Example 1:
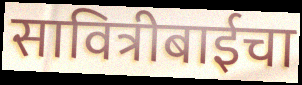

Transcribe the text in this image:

सावित्रीबाईचा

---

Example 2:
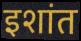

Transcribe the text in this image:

इशांत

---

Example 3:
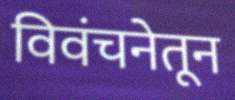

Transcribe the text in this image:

विवंचनेतून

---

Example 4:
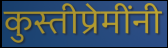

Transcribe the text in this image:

कुस्तीप्रेमींनी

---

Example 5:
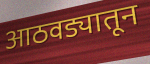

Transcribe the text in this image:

आठवड्यातून